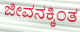
ಜೀವನಕ್ಕಿಂತ